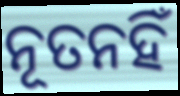
ନୂତନହିଁ